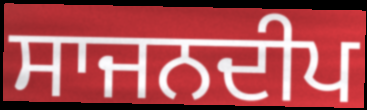
ਸਾਜਨਦੀਪ